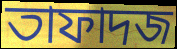
তাফাদজ